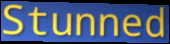
Stunned